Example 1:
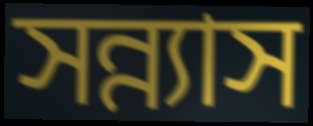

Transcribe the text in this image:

সন্ন্যাস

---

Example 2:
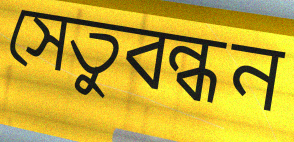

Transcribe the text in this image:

সেতুবন্ধন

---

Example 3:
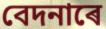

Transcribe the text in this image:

বেদনাৰে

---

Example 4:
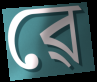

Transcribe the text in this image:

ৱে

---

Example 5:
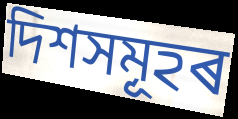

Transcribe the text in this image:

দিশসমূহৰ